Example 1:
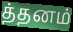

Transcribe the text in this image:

த்தனம்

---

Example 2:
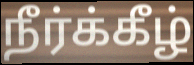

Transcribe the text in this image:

நீர்க்கீழ்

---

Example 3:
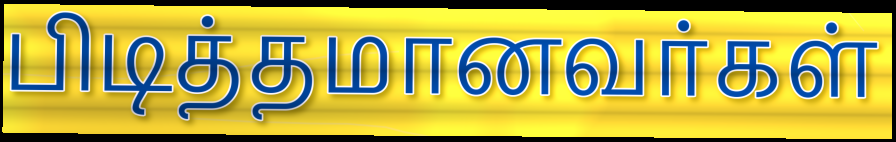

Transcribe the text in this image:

பிடித்தமானவர்கள்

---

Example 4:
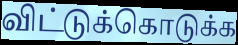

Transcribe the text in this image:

விட்டுக்கொடுக்க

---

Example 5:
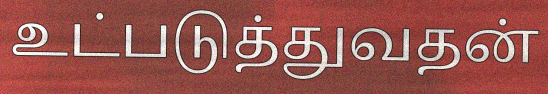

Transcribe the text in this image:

உட்படுத்துவதன்